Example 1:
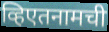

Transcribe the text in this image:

व्हिएतनामची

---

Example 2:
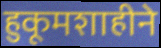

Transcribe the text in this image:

हुकूमशाहीने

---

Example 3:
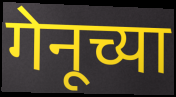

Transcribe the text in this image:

गेनूच्या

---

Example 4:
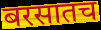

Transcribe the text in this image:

बरसातच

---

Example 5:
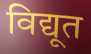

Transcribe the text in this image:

विद्यूत